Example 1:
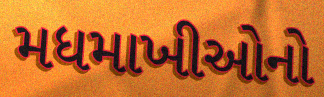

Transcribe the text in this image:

મધમાખીઓનો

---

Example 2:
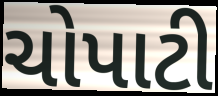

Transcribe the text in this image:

ચોપાટી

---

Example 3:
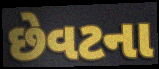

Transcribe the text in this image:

છેવટના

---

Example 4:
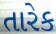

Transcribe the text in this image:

તારેક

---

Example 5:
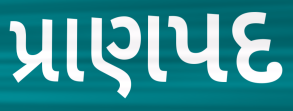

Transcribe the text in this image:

પ્રાણપદ